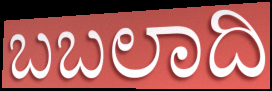
ಬಬಲಾದಿ